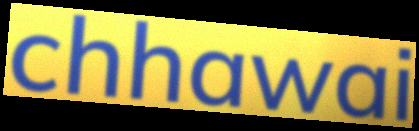
chhawai